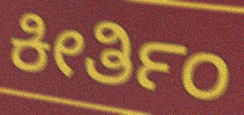
ಕೀರ್ತಿಂ